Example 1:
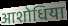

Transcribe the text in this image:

आशोधिया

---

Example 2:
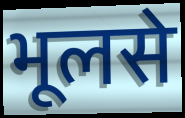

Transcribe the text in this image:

भूलसे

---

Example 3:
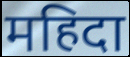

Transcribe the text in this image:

महिदा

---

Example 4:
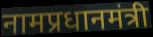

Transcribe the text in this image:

नामप्रधानमंत्री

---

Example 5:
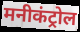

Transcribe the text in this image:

मनीकंट्रोल